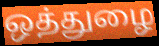
ஒத்துழை